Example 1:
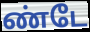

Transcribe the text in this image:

ண்டே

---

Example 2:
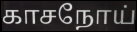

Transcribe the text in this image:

காசநோய்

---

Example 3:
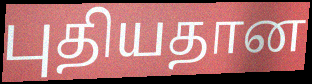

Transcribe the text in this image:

புதியதான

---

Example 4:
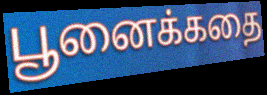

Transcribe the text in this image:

பூனைக்கதை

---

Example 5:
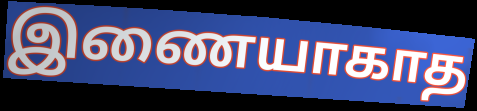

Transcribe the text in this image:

இணையாகாத